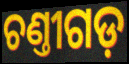
ଚଣ୍ତୀଗଡ଼